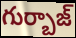
గుర్బాజ్